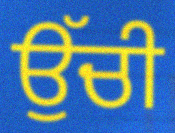
ਉੱਚੀ